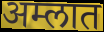
अम्लात